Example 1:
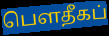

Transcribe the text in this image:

பௌதீகப்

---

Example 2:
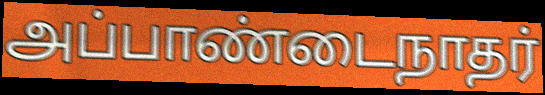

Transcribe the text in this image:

அப்பாண்டைநாதர்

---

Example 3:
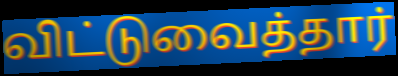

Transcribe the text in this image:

விட்டுவைத்தார்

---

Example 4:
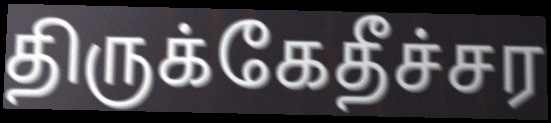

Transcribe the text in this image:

திருக்கேதீச்சர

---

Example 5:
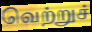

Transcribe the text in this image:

வெற்றுச்